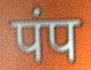
पंप